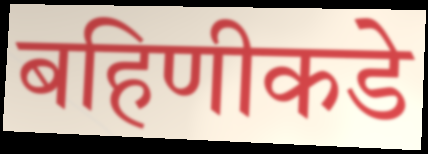
बहिणीकडे